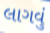
લાગવું